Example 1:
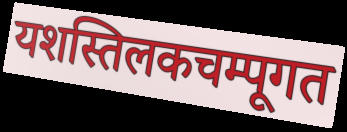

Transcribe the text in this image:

यशस्तिलकचम्पूगत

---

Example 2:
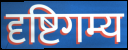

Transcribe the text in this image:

दृष्टिगम्य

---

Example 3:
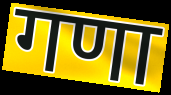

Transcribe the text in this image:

गणा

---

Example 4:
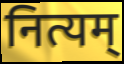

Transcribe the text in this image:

नित्यम्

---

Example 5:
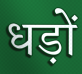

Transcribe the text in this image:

धड़ों